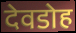
देवडोह